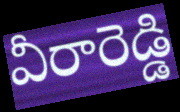
వీరారెడ్డి